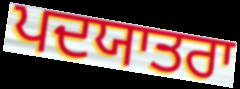
ਪਦਯਾਤਰਾ